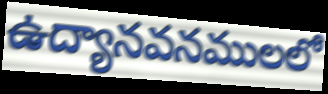
ఉద్యానవనములలో